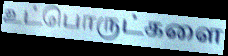
உட்பொருட்களை